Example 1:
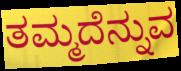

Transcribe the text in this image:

ತಮ್ಮದೆನ್ನುವ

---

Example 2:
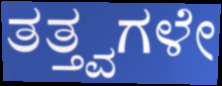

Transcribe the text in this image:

ತತ್ತ್ವಗಳೇ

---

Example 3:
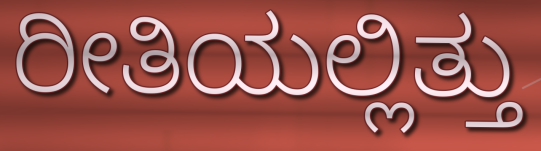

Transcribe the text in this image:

ರೀತಿಯಲ್ಲಿತ್ತು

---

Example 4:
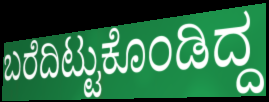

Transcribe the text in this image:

ಬರೆದಿಟ್ಟುಕೊಂಡಿದ್ದ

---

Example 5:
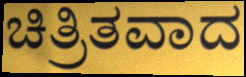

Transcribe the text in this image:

ಚಿತ್ರಿತವಾದ